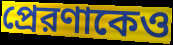
প্রেরণাকেও